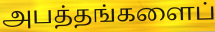
அபத்தங்களைப்